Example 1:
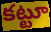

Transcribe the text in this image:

కట్టూ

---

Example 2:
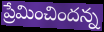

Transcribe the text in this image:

ప్రేమించిందన్న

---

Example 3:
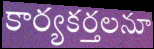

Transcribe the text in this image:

కార్యకర్తలనూ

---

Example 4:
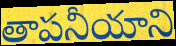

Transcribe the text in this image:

తాపనీయాని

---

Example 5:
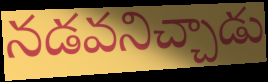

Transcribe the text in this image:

నడవనిచ్చాడు